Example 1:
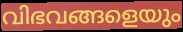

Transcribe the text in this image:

വിഭവങ്ങളെയും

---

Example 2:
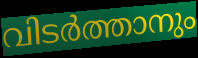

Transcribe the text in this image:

വിടർത്താനും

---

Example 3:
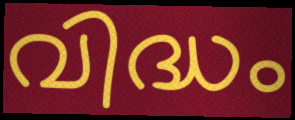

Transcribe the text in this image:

വിദ്ധം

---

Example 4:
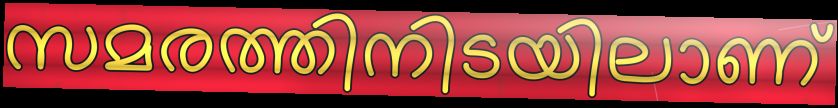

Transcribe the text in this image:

സമരത്തിനിടയിലാണ്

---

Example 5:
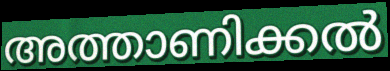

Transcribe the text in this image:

അത്താണിക്കൽ